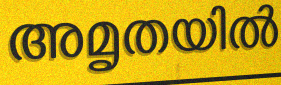
അമൃതയിൽ